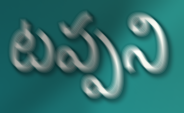
టప్పని